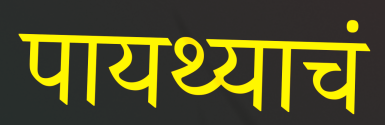
पायथ्याचं